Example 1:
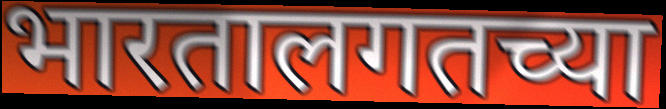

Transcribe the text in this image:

भारतालगतच्या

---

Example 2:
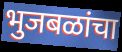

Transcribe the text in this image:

भुजबळांचा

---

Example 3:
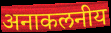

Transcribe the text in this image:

अनाकलनीय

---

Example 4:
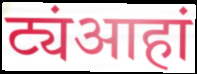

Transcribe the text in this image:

ट्यंआहां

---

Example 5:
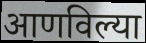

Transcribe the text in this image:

आणविल्या